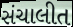
સંચાલીત